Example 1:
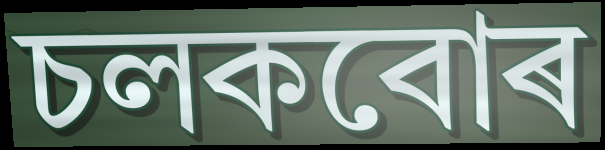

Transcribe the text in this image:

চলকবোৰ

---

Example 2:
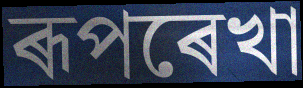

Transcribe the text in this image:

ৰূপৰেখা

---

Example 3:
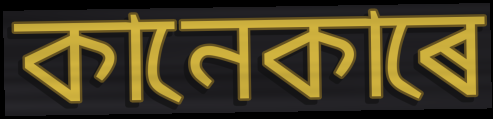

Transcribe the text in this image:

কানেকাৰে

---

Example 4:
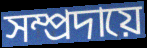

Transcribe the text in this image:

সম্প্ৰদায়ে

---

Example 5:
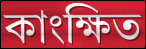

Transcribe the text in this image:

কাংক্ষিত